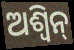
ଅଶ୍ବିନ୍